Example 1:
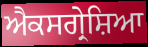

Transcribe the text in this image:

ਐਕਸਗ੍ਰੇਸ਼ਿਆ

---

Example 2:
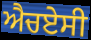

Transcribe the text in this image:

ਐਚਏਸੀ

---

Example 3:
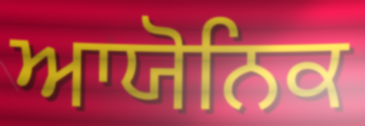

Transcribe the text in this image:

ਆਯੋਨਿਕ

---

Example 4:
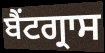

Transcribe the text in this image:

ਬੈਂਟਗ੍ਰਾਸ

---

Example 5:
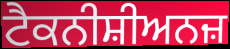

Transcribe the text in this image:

ਟੈਕਨੀਸ਼ੀਅਨਜ਼